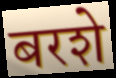
बरशे